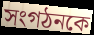
সংগঠনকে